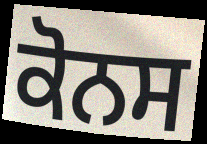
ਕੋਨਸ